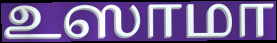
உஸாமா